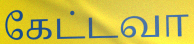
கேட்டவா